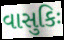
વાસુકિઃ